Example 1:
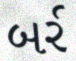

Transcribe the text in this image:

બર્ર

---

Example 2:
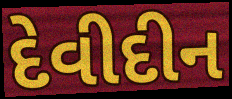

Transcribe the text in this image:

દેવીદીન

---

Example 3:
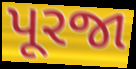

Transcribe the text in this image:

પૂરજા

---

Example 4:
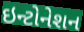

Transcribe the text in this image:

ઇન્ટોનેશન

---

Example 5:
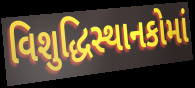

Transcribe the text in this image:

વિશુદ્ધિસ્થાનકોમાં